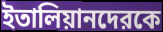
ইতালিয়ানদেরকে